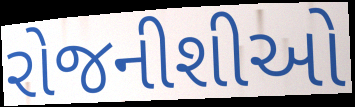
રોજનીશીઓ